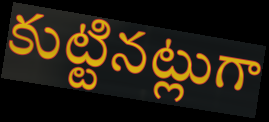
కుట్టినట్లుగా